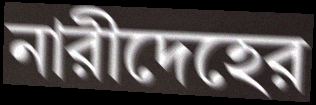
নারীদেহের